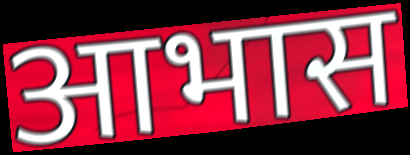
आभास